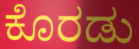
ಕೊರಡು